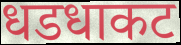
धडधाकट